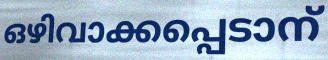
ഒഴിവാക്കപ്പെടാന്